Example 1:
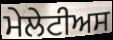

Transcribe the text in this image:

ਮੇਲੇਟੀਅਸ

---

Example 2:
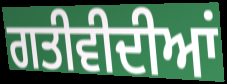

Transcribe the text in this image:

ਗਤੀਵੀਦੀਆਂ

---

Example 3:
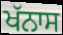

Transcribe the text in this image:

ਖੱਨਾਸ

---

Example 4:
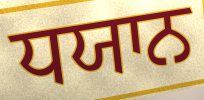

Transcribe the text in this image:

ਧਯਾਨ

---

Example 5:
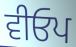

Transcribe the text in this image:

ਵੀਓਪ